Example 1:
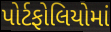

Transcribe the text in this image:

પોર્ટફોલિયોમાં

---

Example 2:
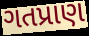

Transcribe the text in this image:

ગતપ્રાણ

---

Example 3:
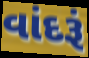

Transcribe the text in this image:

વાંદરૂં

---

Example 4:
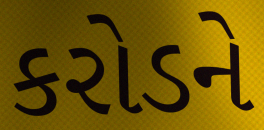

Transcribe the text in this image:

કરોડને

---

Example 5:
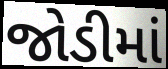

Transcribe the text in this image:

જોડીમાં